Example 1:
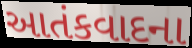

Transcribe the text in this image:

આતંકવાદના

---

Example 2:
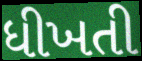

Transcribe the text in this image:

ધીખતી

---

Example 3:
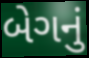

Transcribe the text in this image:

બેગનું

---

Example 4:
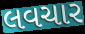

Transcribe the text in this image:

લવચાર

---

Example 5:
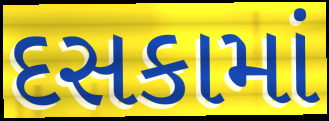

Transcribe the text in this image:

દસકામાં